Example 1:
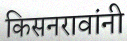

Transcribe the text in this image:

किसनरावांनी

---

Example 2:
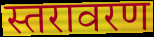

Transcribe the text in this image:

स्तरावरण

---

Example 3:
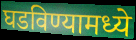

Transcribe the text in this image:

घडविण्यामध्ये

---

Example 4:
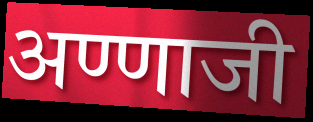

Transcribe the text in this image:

अण्णाजी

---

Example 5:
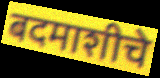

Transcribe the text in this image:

बदमाशीचे